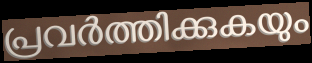
പ്രവർത്തിക്കുകയും